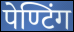
पेण्टिंग